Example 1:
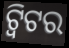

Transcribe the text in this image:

ଟ୍ୱିଟର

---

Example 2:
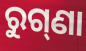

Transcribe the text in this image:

ରୁଗ୍‌ଣା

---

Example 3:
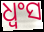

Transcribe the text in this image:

ଧ୍ୱଂସ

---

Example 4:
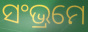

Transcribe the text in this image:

ସଂଭ୍ରମେ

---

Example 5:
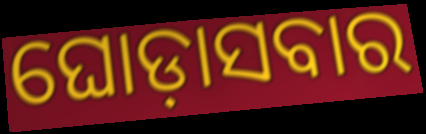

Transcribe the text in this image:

ଘୋଡ଼ାସବାର